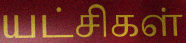
யட்சிகள்